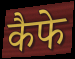
कैफे